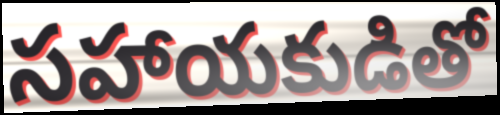
సహాయకుడితో